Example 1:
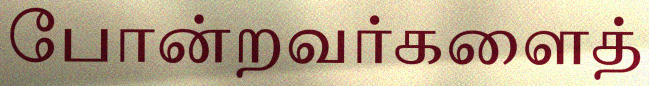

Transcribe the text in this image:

போன்றவர்களைத்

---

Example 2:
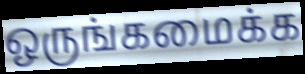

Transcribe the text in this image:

ஒருங்கமைக்க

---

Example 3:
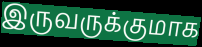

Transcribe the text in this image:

இருவருக்குமாக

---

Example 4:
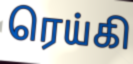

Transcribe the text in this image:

ரெய்கி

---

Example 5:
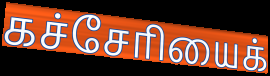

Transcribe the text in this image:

கச்சேரியைக்